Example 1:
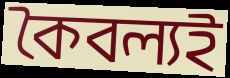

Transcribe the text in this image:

কৈবল্যই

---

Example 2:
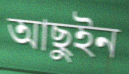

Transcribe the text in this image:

আছুইন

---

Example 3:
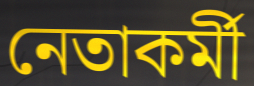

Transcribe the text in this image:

নেতাকর্মী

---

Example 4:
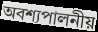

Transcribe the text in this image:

অবশ্যপালনীয়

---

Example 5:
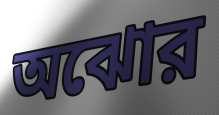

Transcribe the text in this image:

অঝোর